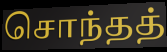
சொந்தத்